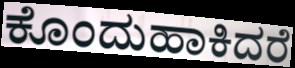
ಕೊಂದುಹಾಕಿದರೆ